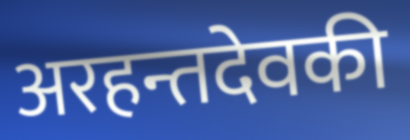
अरहन्तदेवकी